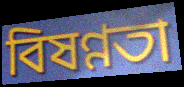
বিষণ্নতা